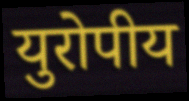
युरोपीय